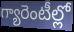
గ్యారెంటీల్లో